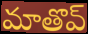
మాతొవ్